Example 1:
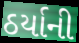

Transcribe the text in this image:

ઠર્યાની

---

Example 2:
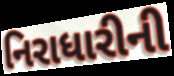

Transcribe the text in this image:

નિરાધારીની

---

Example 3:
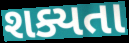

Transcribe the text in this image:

શક્યતા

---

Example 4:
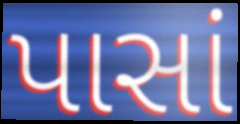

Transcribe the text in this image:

પાસાં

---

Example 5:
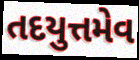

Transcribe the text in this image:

તદયુત્તમેવ